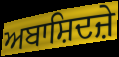
ਅਬਾਸ਼ਿਦਜ਼ੇ